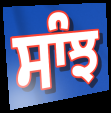
ਸਾੰਝ